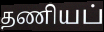
தணியப்